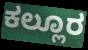
ಕಲ್ಲೂರ